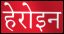
हेरोइन